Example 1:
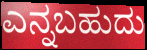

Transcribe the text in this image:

ಎನ್ನಬಹುದು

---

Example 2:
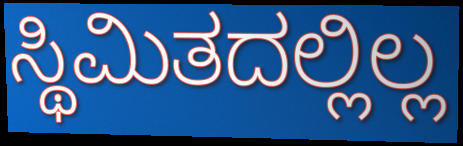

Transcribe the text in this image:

ಸ್ಥಿಮಿತದಲ್ಲಿಲ್ಲ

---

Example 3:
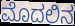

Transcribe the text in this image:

ಮೊದಲಿನ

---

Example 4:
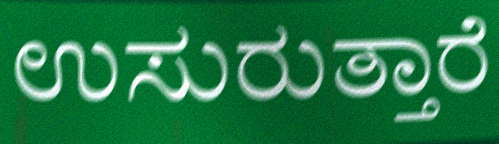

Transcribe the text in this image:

ಉಸುರುತ್ತಾರೆ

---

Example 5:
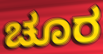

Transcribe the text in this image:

ಚೂರ